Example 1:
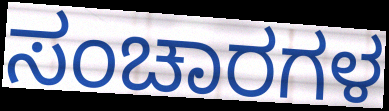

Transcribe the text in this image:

ಸಂಚಾರಗಳ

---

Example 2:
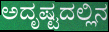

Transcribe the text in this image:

ಅದೃಷ್ಟದಲ್ಲಿನ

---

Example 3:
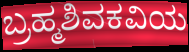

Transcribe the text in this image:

ಬ್ರಹ್ಮಶಿವಕವಿಯ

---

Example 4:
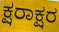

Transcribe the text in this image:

ಕ್ಷರಾಕ್ಷರ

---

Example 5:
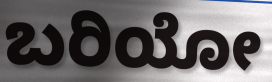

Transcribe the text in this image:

ಬರಿಯೋ